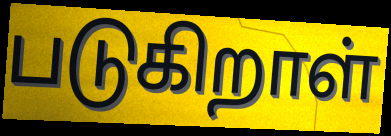
படுகிறாள்